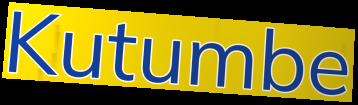
Kutumbe